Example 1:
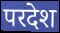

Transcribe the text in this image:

परदेश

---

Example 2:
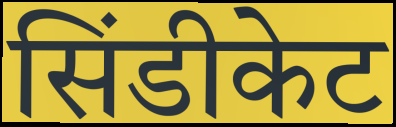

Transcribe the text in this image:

सिंडीकेट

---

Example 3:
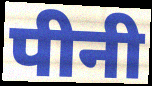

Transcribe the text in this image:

पीनी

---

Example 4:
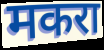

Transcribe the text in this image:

मकरा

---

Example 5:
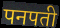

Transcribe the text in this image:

पनपती